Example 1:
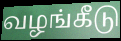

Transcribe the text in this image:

வழங்கீடு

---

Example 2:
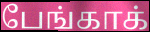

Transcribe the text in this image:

பேங்காக்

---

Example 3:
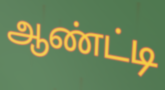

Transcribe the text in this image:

ஆண்ட்டி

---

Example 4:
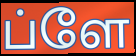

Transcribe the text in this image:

ப்ளே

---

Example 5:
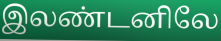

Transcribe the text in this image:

இலண்டனிலே